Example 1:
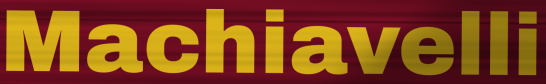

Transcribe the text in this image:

Machiavelli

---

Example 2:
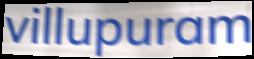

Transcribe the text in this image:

villupuram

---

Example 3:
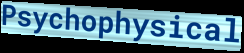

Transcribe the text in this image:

Psychophysical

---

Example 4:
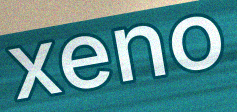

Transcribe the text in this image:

xeno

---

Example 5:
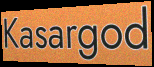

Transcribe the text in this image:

Kasargod